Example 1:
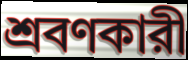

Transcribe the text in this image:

শ্রবণকারী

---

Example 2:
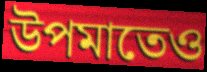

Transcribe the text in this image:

উপমাতেও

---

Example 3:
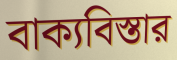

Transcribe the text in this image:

বাক্যবিস্তার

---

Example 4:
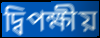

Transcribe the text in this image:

দ্বিপক্ষীয়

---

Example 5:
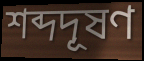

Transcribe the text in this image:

শব্দদূষণ